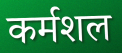
कर्मशल